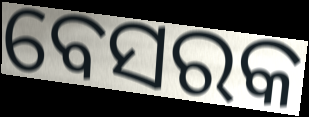
ବେସରକ